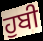
ਹੁਬੀ